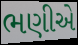
ભણીએ